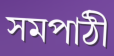
সমপাঠী